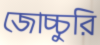
জোচ্চুরি